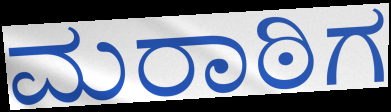
ಮರಾಠಿಗ